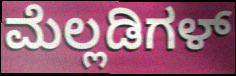
ಮೆಲ್ಲಡಿಗಳ್